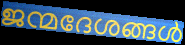
ജന്മദേശങ്ങൾ